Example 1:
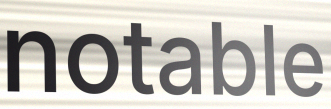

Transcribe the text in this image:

notable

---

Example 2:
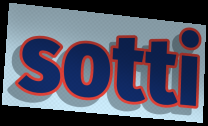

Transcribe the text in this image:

sotti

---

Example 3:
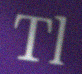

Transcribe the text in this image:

Tl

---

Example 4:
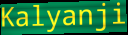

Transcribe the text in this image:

Kalyanji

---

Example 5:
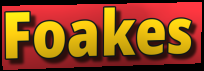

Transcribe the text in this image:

Foakes